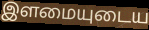
இளமையுடைய